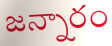
జన్నారం